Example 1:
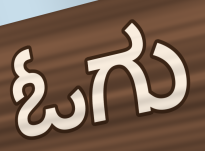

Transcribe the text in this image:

ಓಗು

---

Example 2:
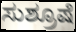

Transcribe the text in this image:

ಸುಶ್ರೂಷೆ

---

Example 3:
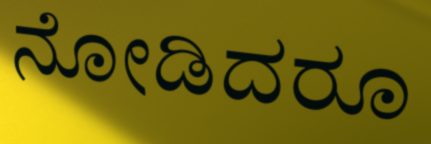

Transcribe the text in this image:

ನೋಡಿದರೂ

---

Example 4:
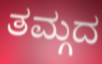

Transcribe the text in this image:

ತಮ್ಗದ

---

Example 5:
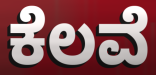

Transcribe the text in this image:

ಕೆಲವೆ